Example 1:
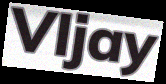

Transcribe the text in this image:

VIjay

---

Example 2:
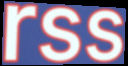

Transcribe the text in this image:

rss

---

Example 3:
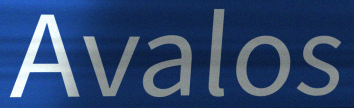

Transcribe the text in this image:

Avalos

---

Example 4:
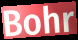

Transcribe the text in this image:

Bohr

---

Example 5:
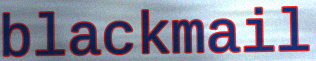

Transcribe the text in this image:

blackmail